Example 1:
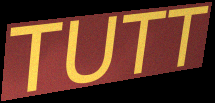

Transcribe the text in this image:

TUTT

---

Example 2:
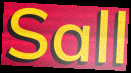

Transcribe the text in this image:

Sall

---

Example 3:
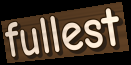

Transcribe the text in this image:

fullest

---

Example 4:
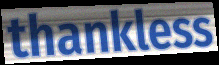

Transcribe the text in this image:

thankless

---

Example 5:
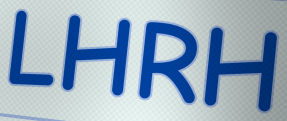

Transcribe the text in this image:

LHRH